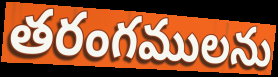
తరంగములను